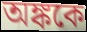
অঙ্ককে